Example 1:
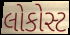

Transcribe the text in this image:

લોકોસ્ટ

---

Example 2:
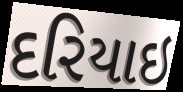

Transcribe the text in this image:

દરિયાઇ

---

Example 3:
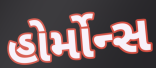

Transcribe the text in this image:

હોર્મોન્સ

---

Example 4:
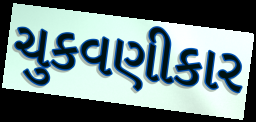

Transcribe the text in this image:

ચુકવણીકાર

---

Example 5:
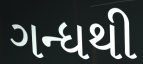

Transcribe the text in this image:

ગન્ધથી